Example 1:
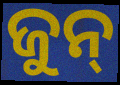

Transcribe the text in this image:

ଜୁନ୍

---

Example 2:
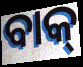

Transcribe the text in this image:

ବାକ୍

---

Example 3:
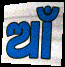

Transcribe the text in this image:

ଆଁ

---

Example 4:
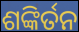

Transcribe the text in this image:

ଶଙ୍କିର୍ତନ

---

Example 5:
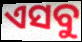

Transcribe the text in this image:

ଏସବୁ